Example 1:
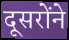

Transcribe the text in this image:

दूसरोंने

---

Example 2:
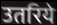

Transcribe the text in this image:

उतरिये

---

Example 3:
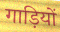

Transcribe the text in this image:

गाड़ियों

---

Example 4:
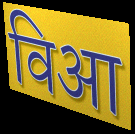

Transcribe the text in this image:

विआ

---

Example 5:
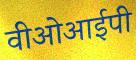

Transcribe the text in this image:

वीओआईपी